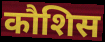
कौशिस